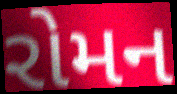
રોમન